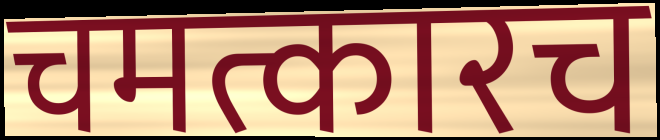
चमत्कारच